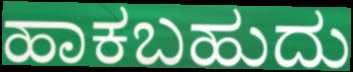
ಹಾಕಬಹುದು